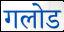
गलोड